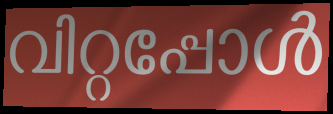
വിറ്റപ്പോൾ